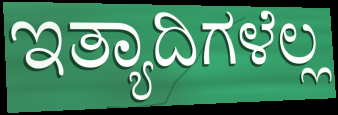
ಇತ್ಯಾದಿಗಳೆಲ್ಲ